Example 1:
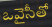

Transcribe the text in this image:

ఒవైసీతో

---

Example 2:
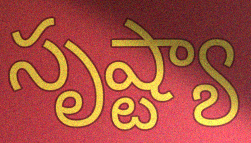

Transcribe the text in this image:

సృష్ట్యా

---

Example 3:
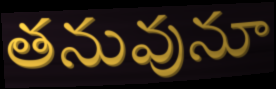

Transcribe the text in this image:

తనువునూ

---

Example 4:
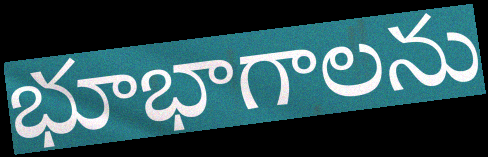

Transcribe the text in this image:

భూభాగాలను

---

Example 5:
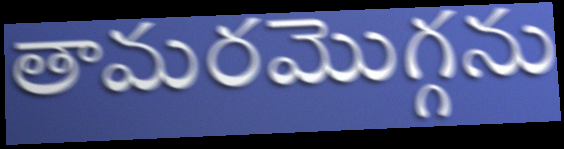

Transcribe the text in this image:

తామరమొగ్గను